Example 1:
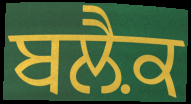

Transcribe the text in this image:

ਬਲ਼ੈਕ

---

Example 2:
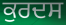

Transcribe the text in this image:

ਕੁਰਦਸ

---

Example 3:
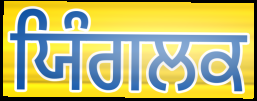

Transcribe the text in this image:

ਯਿੰਗਲਕ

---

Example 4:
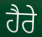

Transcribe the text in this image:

ਹੈਰੇ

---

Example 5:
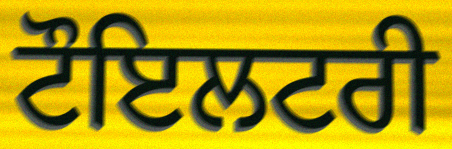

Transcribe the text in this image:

ਟੌਇਲਟਰੀ